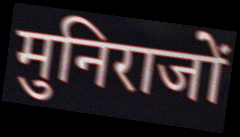
मुनिराजों